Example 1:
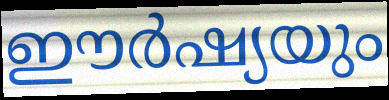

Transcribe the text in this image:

ഈർഷ്യയും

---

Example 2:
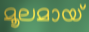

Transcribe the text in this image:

മൂലമായ്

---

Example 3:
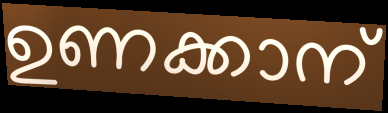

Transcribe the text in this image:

ഉണക്കാന്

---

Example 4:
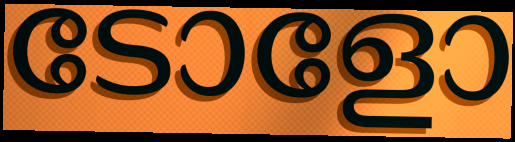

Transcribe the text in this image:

ടോളോ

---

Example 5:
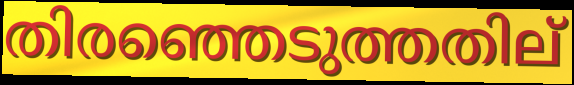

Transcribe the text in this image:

തിരഞ്ഞെടുത്തതില്